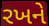
રખને